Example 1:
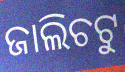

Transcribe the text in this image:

ଜାଲିଚଟୁ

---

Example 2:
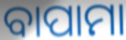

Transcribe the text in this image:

ବାପାମା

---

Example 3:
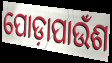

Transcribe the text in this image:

ପୋଡ଼ାପାଉଁଶ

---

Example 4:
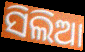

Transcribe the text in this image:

ସିଲିଆ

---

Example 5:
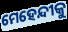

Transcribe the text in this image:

ମେହେନ୍ଦୀକୁ